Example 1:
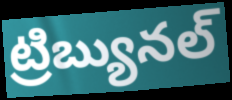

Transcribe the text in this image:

ట్రిబ్యునల్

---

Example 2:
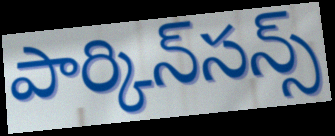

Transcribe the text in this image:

పార్కిన్‌సన్స్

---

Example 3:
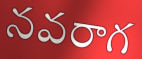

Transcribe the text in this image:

నవరాగ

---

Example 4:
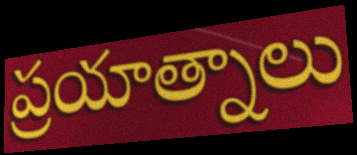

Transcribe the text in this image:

ప్రయాత్నాలు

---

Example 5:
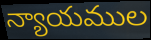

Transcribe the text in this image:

న్యాయముల